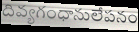
దివ్యగంధానులేపనం